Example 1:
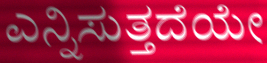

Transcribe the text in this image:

ಎನ್ನಿಸುತ್ತದೆಯೇ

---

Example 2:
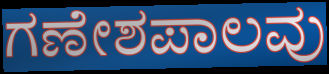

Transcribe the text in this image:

ಗಣೇಶಪಾಲವು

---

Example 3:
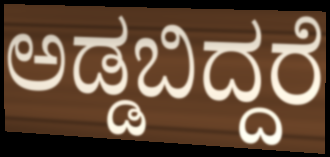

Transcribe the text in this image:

ಅಡ್ಡಬಿದ್ದರೆ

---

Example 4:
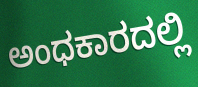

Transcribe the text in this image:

ಅಂಧಕಾರದಲ್ಲಿ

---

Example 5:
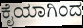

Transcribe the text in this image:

ಕೈಯಾಗಿಂದ